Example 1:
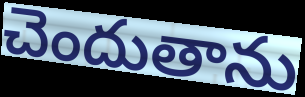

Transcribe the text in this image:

చెందుతాను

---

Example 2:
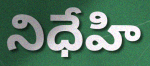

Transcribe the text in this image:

నిధేహి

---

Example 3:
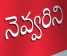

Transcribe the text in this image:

నెవ్వరిని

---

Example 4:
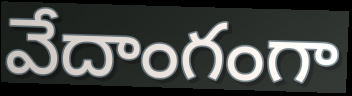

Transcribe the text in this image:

వేదాంగంగా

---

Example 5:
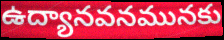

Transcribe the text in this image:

ఉద్యానవనమునకు